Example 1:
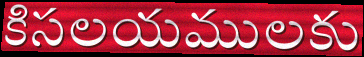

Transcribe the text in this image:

కిసలయములకు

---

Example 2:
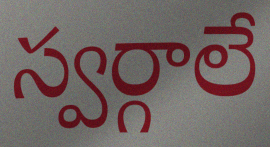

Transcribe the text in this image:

స్వర్గాలే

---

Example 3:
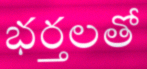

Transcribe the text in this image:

భర్తలతో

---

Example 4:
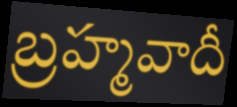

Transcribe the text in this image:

బ్రహ్మవాదీ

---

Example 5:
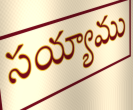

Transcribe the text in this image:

సయ్యాము